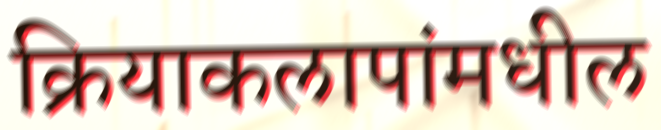
क्रियाकलापांमधील